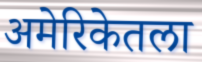
अमेरिकेतला